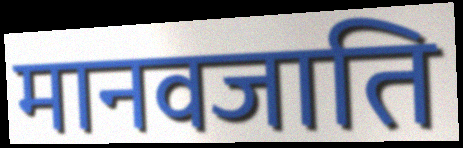
मानवजाति